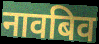
नावबिव